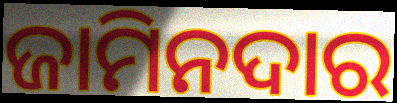
ଜାମିନଦାର